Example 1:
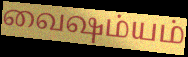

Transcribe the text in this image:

வைஷம்யம்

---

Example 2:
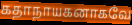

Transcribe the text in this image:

கதாநாயகனாகவே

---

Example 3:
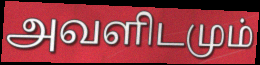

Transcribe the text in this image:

அவளிடமும்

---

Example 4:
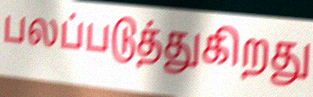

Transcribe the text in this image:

பலப்படுத்துகிறது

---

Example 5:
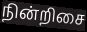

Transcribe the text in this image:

நின்றிசை